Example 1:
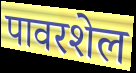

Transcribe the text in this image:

पावरशेल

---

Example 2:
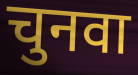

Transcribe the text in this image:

चुनवा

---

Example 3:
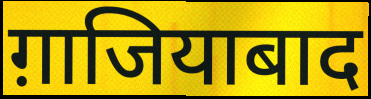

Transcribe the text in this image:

ग़ाजियाबाद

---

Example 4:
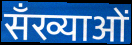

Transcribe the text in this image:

सँख्याओं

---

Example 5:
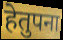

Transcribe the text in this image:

हेतुपना